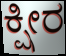
ಕ್ಷೀರ